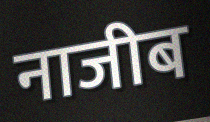
नाजीब